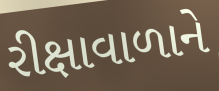
રીક્ષાવાળાને